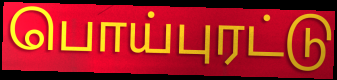
பொய்புரட்டு